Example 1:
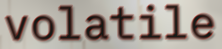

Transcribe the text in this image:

volatile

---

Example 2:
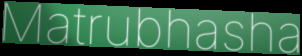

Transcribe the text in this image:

Matrubhasha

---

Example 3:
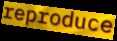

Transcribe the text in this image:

reproduce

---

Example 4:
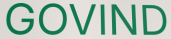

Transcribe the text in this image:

GOVIND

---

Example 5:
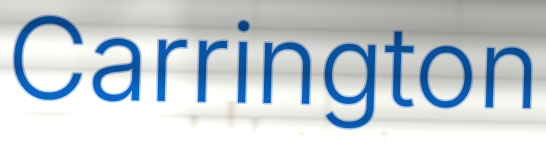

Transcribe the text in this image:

Carrington